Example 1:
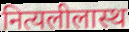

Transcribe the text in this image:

नित्यलीलास्थ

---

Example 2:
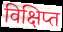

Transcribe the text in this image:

विक्षिप्त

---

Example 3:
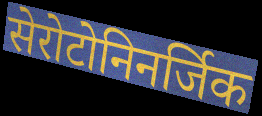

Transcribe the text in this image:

सेरोटोनिनर्जिक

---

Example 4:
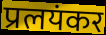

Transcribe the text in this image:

प्रलयंकर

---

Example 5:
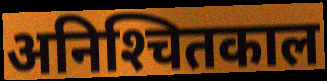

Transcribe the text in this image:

अनिश्‍चितकाल